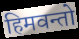
हिमवन्तो